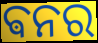
ଵନର